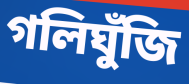
গলিঘুঁজি